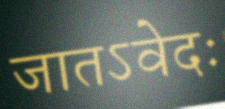
जातऽवेदः